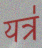
यत्र॑